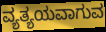
ವ್ಯತ್ಯಯವಾಗುವ